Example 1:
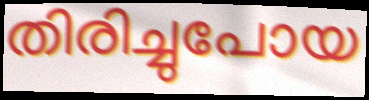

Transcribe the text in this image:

തിരിച്ചുപോയ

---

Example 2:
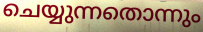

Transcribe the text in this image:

ചെയ്യുന്നതൊന്നും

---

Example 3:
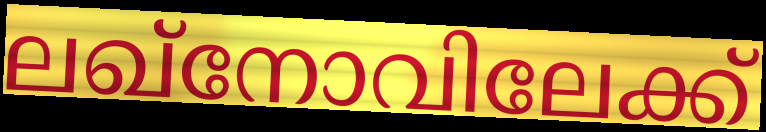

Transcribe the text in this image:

ലഖ്നോവിലേക്ക്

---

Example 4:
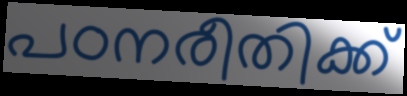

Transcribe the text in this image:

പഠനരീതിക്ക്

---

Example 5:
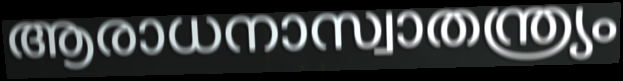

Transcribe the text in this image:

ആരാധനാസ്വാതന്ത്ര്യം